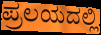
ಪ್ರಲಯದಲ್ಲಿ